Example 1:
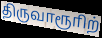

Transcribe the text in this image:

திருவாரூரிற்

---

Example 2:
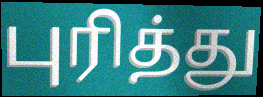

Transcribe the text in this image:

புரித்து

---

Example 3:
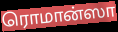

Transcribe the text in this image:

ரொமான்ஸா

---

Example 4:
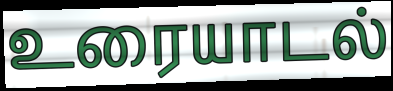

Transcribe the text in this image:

உரையாடல்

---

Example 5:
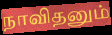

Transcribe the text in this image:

நாவிதனும்